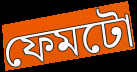
ফেমটো